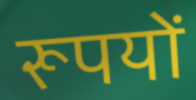
रूपयों